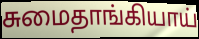
சுமைதாங்கியாய்